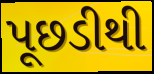
પૂછડીથી